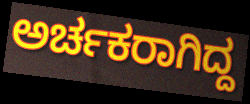
ಅರ್ಚಕರಾಗಿದ್ದ